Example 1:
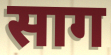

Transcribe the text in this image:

साग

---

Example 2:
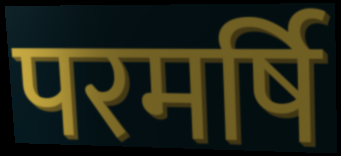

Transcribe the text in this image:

परमर्षि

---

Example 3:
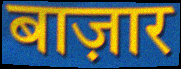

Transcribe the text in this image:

बाज़ार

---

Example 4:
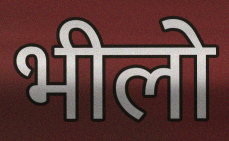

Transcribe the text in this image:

भीलो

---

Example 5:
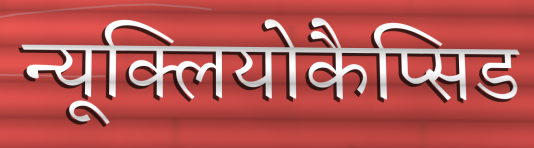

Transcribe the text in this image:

न्यूक्लियोकैप्सिड